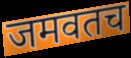
जमवतच